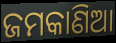
ଜମକାଣିଆ